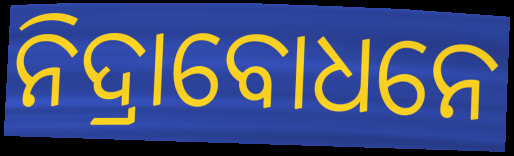
ନିଦ୍ରାବୋଧନେ